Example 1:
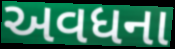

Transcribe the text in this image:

અવધના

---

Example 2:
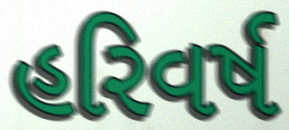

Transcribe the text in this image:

હરિવર્ષ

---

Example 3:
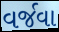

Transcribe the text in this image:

વર્જવા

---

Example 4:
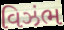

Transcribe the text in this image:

વિઝંભ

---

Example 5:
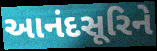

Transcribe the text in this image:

આનંદસૂરિને